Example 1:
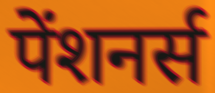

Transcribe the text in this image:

पेंशनर्स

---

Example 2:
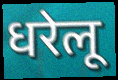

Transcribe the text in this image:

धरेलू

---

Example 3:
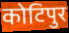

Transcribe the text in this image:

कोटिपुर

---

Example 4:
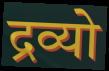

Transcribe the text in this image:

द्रव्यो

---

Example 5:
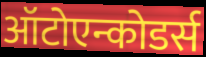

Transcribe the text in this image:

ऑटोएन्कोडर्स